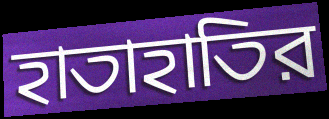
হাতাহাতির